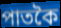
পাতকৈ